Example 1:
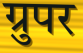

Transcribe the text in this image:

ग्रुपर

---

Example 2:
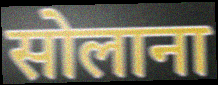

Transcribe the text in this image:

सोलाना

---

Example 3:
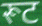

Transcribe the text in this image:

रूट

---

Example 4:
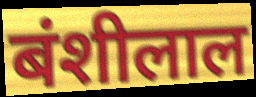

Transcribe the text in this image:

बंशीलाल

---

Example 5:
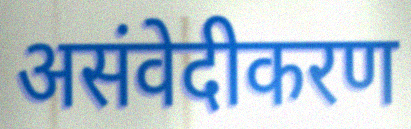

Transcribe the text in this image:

असंवेदीकरण